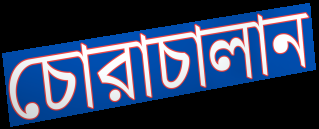
চোরাচালান